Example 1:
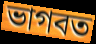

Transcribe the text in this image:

ভাগবত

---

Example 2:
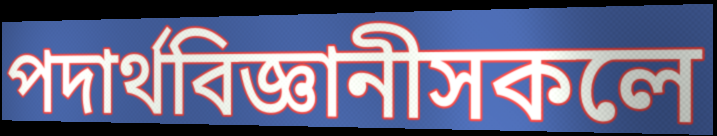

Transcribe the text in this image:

পদাৰ্থবিজ্ঞানীসকলে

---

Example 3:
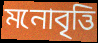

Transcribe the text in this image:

মনোবৃত্তি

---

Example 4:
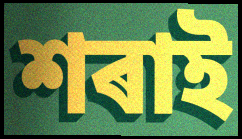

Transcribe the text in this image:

শৰাই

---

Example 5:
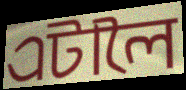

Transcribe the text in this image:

এটালৈ